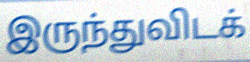
இருந்துவிடக்